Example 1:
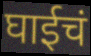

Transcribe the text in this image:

घाईचं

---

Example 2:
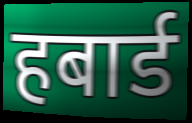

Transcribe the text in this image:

हबार्ड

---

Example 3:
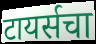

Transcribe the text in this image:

टायर्सचा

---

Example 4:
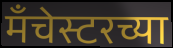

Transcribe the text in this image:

मँचेस्टरच्या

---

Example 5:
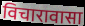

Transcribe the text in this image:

विचारावासा